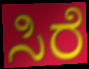
ಸಿರೆ